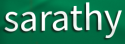
sarathy